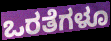
ಒರತೆಗಳೂ